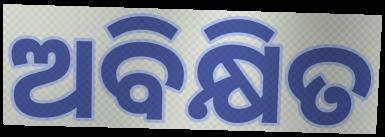
ଅବିକ୍ଷିତ